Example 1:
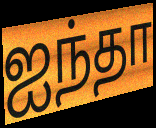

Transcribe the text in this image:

ஐந்தா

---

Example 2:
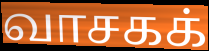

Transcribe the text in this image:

வாசகக்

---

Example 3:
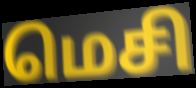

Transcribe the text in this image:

மெசி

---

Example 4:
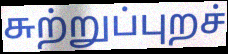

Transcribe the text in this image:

சுற்றுப்புறச்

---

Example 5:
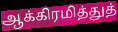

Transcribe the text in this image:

ஆக்கிரமித்துத்